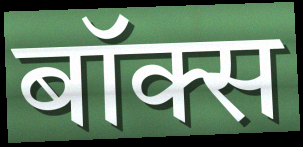
बॉक्‍स